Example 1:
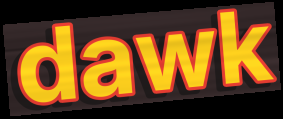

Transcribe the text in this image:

dawk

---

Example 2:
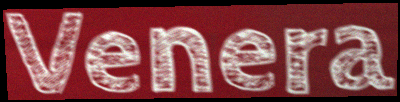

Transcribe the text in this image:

Venera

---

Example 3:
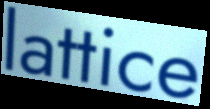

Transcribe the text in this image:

lattice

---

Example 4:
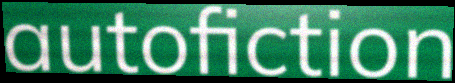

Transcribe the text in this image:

autofiction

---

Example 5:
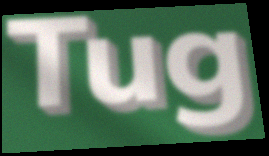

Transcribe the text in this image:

Tug